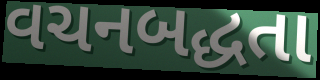
વચનબદ્ધતા